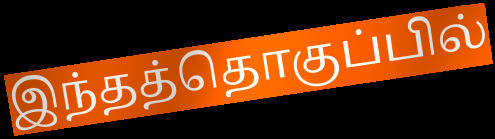
இந்தத்தொகுப்பில்